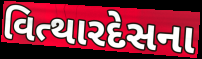
વિત્થારદેસના